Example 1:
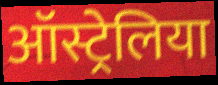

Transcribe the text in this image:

ऑस्ट्रेलिया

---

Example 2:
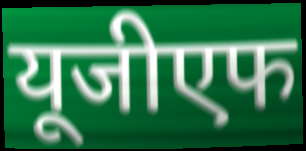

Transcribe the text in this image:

यूजीएफ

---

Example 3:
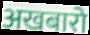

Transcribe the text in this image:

अखबारो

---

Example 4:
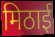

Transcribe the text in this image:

मिठाई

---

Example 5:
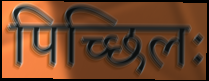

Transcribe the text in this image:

पिच्छिलः